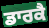
ਡਾਰਕੈ